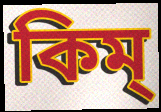
কিম্